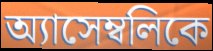
অ্যাসেম্বলিকে